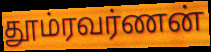
தூம்ரவர்ணன்